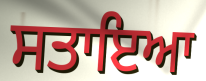
ਸਤਾਇਆ